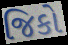
જિકો